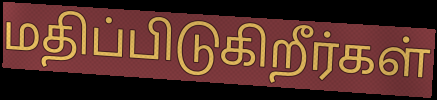
மதிப்பிடுகிறீர்கள்